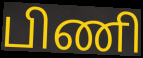
பிணி